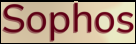
Sophos